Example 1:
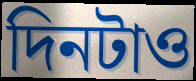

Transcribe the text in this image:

দিনটাও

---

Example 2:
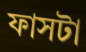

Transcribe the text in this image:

ফাসটা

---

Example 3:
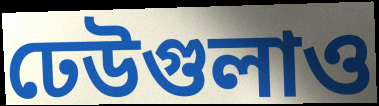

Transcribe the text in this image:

ঢেউগুলাও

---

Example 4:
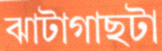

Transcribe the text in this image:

ঝাটাগাছটা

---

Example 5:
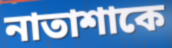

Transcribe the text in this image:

নাতাশাকে